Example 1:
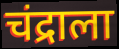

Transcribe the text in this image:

चंद्राला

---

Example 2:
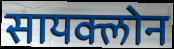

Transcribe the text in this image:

सायक्लोन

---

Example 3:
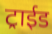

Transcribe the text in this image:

ट्राईड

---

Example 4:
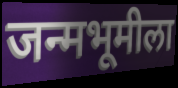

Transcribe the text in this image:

जन्मभूमीला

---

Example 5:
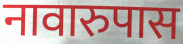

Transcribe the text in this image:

नावारुपास